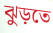
ঝুড়তে